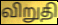
விறுதி